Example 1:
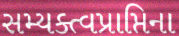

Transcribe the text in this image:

સમ્યક્ત્વપ્રાપ્તિના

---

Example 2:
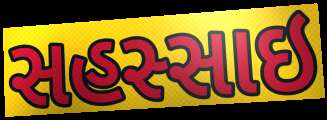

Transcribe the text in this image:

સહસ્સાઇ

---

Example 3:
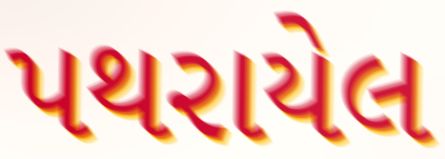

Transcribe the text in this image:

પથરાયેલ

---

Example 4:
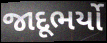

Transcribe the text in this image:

જાદૂભર્યો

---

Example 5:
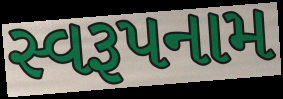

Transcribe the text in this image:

સ્વરૂપનામ